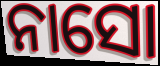
ନାସୋ